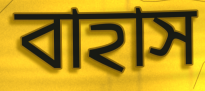
বাহাস